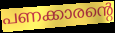
പണക്കാരന്റെ